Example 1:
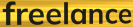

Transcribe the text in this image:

freelance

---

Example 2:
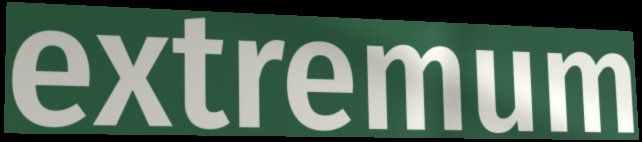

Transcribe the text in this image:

extremum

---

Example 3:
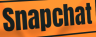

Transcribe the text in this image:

Snapchat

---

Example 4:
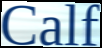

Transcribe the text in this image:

Calf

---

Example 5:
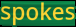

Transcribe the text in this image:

spokes